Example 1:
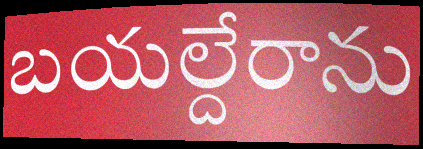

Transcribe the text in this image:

బయల్దేరాను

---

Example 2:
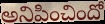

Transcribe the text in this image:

అనిపించిందో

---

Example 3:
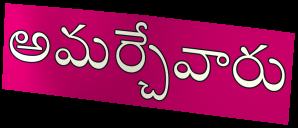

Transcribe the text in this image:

అమర్చేవారు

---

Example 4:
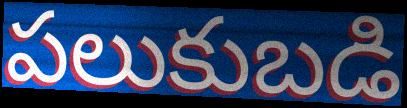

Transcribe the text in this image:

పలుకుబడి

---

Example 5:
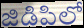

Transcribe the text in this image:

జిడిపిలో